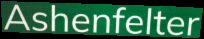
Ashenfelter